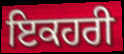
ਇਕਹਰੀ